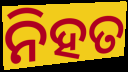
ନିହତ